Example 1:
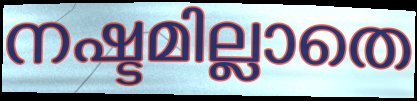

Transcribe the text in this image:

നഷ്ടമില്ലാതെ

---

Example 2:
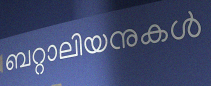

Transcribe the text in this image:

ബറ്റാലിയനുകൾ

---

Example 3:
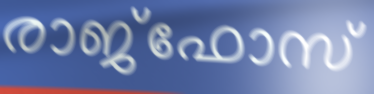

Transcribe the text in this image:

രാജ്ഫോസ്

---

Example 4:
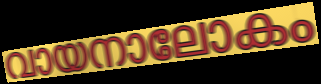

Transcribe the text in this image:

വായനാലോകം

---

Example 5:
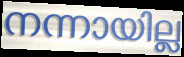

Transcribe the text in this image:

നന്നായില്ല